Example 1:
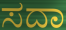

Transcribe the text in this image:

ಸದಾ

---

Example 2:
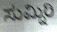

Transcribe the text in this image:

ಸುಮ್ನಿರಿ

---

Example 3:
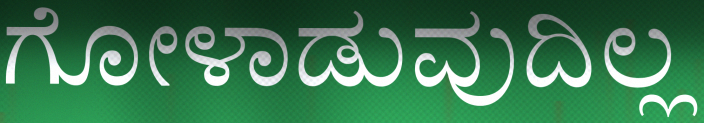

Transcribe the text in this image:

ಗೋಳಾಡುವುದಿಲ್ಲ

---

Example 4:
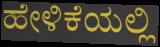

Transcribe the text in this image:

ಹೇಳಿಕೆಯಲ್ಲಿ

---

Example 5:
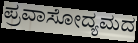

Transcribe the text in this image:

ಪ್ರವಾಸೋದ್ಯಮದ